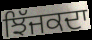
ਝਿੱਜਕਦਾ